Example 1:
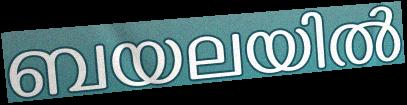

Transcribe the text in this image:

ബയലയിൽ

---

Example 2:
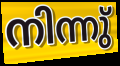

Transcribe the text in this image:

നിന്നു്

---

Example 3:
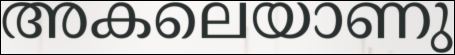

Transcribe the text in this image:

അകലെയാണു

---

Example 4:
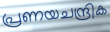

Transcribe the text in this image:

പ്രണയചന്ദ്രിക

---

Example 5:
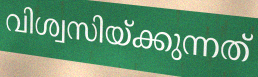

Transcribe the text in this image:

വിശ്വസിയ്ക്കുന്നത്